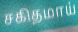
சகிதமாய்